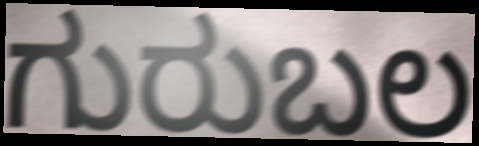
ಗುರುಬಲ